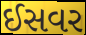
ઈસવર